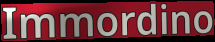
Immordino